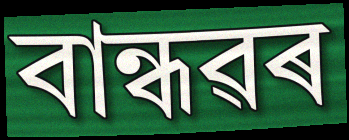
বান্ধৱৰ